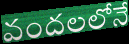
వందలలోనే